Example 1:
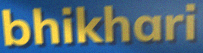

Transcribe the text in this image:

bhikhari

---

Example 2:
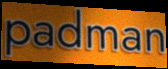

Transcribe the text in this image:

padman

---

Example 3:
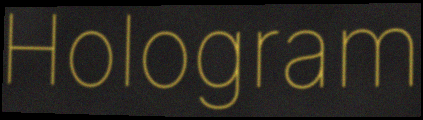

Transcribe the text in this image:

Hologram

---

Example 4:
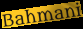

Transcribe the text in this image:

Bahmani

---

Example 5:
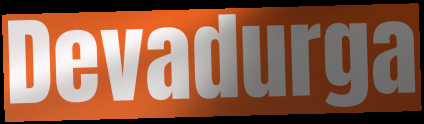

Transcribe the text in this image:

Devadurga